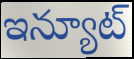
ఇన్యూట్